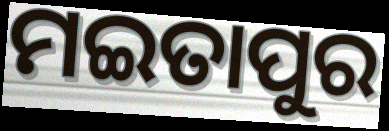
ମଇତାପୁର